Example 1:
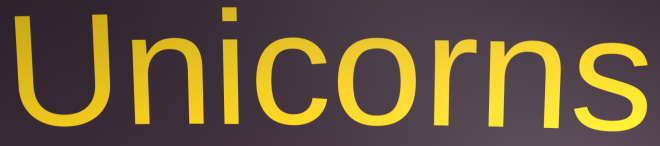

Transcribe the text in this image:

Unicorns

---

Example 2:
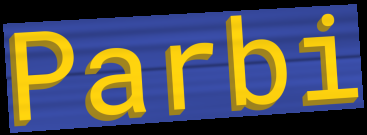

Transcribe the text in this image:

Parbi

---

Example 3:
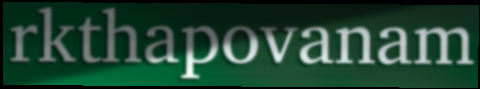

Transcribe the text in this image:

rkthapovanam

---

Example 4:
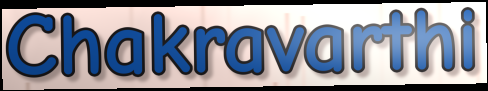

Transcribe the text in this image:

Chakravarthi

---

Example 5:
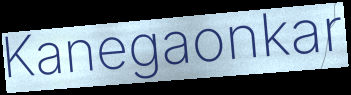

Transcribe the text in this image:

Kanegaonkar